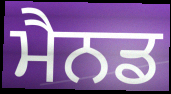
ਮੈਨਡ